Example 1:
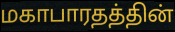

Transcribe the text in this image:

மகாபாரதத்தின்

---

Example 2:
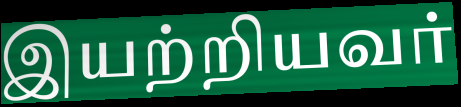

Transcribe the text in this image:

இயற்றியவர்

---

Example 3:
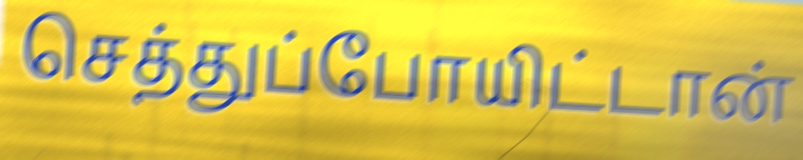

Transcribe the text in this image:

செத்துப்போயிட்டான்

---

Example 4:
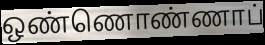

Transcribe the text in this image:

ஒண்ணொண்ணாப்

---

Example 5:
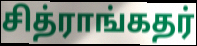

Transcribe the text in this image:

சித்ராங்கதர்